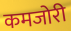
कमजोरी